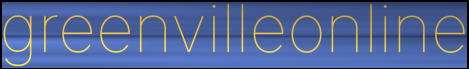
greenvilleonline